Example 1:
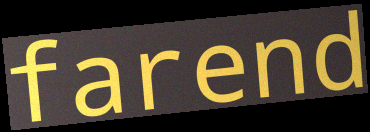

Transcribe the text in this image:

farend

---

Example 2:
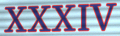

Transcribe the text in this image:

XXXIV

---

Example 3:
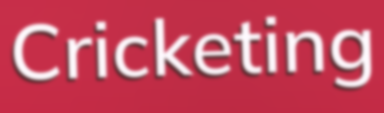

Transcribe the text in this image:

Cricketing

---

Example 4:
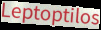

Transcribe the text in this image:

Leptoptilos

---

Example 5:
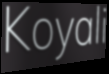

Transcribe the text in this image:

Koyali